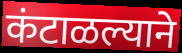
कंटाळल्याने